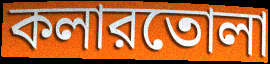
কলারতোলা